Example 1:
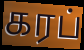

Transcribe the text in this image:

கரப்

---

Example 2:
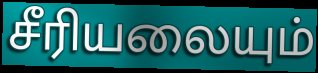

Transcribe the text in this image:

சீரியலையும்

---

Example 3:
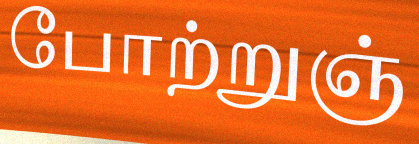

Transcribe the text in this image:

போற்றுஞ்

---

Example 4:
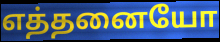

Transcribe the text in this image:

எத்தனையோ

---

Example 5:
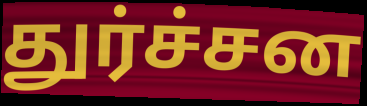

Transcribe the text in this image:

துர்ச்சன